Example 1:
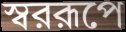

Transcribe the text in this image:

স্বররূপে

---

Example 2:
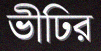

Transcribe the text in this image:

ভীঢির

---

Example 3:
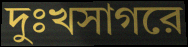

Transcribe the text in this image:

দুঃখসাগরে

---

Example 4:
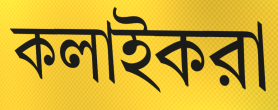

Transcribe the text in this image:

কলাইকরা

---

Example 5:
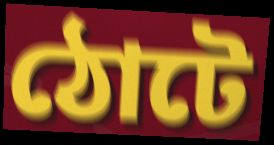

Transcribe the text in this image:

ঠোটে